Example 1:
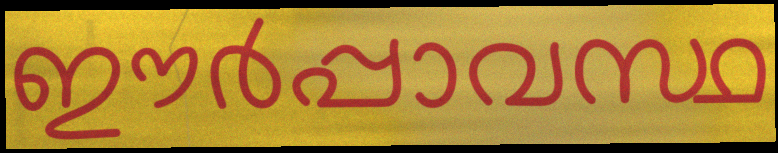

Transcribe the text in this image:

ഈർപ്പാവസ്ഥ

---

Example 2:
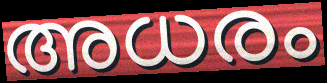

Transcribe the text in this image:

അധരം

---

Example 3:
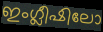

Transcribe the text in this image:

ഇംഗ്ലീഷിലോ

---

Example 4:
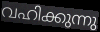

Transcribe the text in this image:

വഹിക്കുന്നു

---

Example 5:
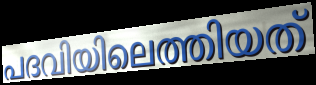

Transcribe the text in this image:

പദവിയിലെത്തിയത്